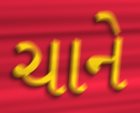
ચાને